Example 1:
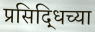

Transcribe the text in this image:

प्रसिद्धिच्या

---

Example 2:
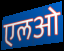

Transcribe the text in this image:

एलओ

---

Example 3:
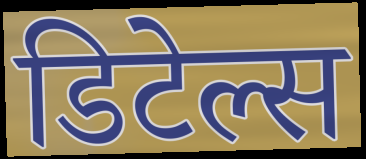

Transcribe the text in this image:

डिटेल्स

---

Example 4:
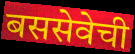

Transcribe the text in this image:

बससेवेची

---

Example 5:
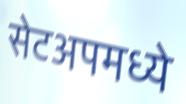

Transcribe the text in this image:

सेटअपमध्ये